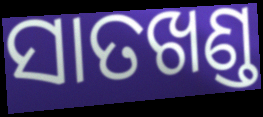
ସାତଖଣ୍ଡ